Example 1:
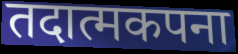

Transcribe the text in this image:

तदात्मकपना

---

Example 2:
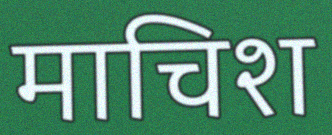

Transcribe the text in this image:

माचिश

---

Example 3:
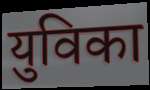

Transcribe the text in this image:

युविका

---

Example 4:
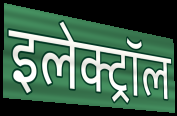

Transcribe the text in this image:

इलेक्ट्रॉल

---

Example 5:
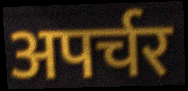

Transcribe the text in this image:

अपर्चर